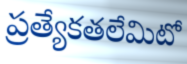
ప్రత్యేకతలేమిటో